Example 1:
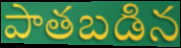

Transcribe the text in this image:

పాతబడిన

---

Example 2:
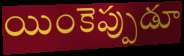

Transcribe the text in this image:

యింకెప్పుడూ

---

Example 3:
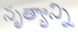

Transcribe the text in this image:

నృత్యాన్ని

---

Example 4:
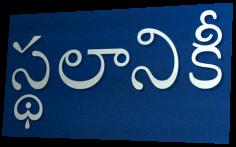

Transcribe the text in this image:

స్థలానికీ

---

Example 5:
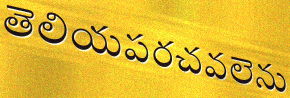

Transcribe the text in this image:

తెలియపరచవలెను